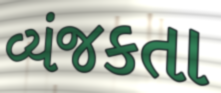
વ્યંજકતા